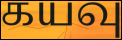
கயவு